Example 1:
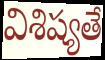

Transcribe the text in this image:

విశిష్యతే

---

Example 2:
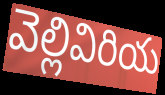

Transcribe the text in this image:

వెల్లివిరియ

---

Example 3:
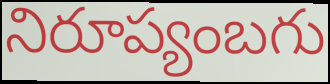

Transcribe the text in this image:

నిరూప్యంబగు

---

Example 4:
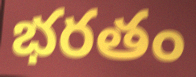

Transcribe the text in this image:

భరతం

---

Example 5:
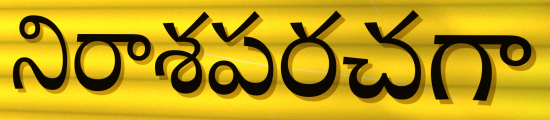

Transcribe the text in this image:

నిరాశపరచగా